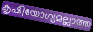
കൃഷിയോഗ്യമല്ലാത്ത